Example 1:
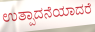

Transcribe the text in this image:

ಉತ್ಪಾದನೆಯಾದರೆ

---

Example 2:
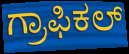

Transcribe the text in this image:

ಗ್ರಾಫಿಕಲ್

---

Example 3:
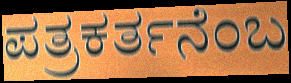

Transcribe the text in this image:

ಪತ್ರಕರ್ತನೆಂಬ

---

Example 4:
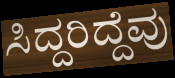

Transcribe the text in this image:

ಸಿದ್ದರಿದ್ದೆವು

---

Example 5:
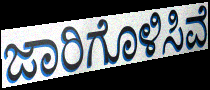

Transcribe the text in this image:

ಜಾರಿಗೊಳಿಸಿವೆ